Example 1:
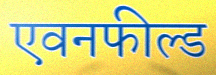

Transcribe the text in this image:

एवनफील्ड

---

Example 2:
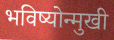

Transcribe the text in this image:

भविष्योन्मुखी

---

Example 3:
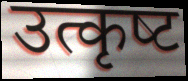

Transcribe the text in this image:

उत्कृष्‍ट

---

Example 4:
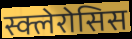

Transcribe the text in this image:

स्क्लेरोसिस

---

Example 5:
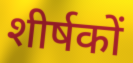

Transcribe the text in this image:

शीर्षकों